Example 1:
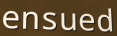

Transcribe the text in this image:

ensued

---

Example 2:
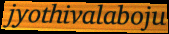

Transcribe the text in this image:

jyothivalaboju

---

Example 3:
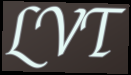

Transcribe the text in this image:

LVT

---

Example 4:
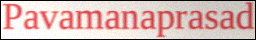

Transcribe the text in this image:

Pavamanaprasad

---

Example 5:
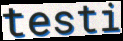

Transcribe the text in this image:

testi